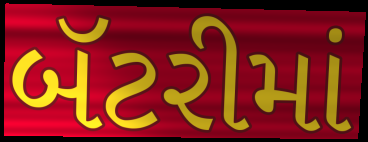
બૅટરીમાં